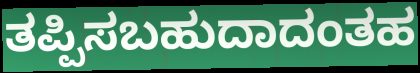
ತಪ್ಪಿಸಬಹುದಾದಂತಹ